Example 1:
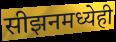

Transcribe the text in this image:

सीझनमध्येही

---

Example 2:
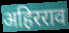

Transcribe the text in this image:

अहिरराव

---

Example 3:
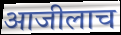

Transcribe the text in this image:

आजीलाच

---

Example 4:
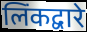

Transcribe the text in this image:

लिंकद्वारे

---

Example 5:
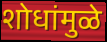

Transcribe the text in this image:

शोधांमुळे